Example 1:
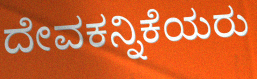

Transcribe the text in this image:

ದೇವಕನ್ನಿಕೆಯರು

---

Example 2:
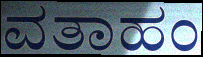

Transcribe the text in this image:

ವತಾಹಂ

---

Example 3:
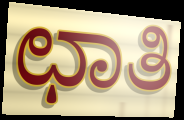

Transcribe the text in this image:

ಛಾತಿ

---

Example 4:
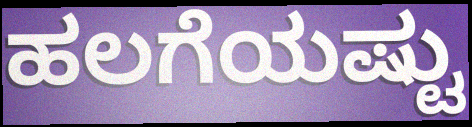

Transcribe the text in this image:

ಹಲಗೆಯಷ್ಟು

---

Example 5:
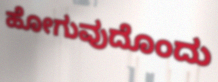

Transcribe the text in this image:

ಹೋಗುವುದೊಂದು